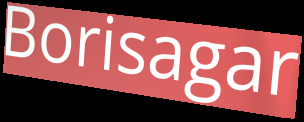
Borisagar